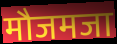
मौजमजा